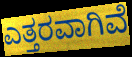
ಎತ್ತರವಾಗಿವೆ